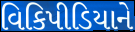
વિકિપીડિયાને